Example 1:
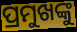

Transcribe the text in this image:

ପ୍ରମୁଖଙ୍କୁ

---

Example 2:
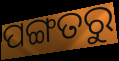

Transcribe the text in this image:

ପଙ୍ଗତରୁ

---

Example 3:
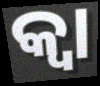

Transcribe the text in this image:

କ୍ଵା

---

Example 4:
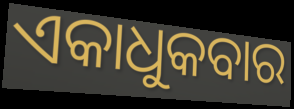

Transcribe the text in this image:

ଏକାଧୁକବାର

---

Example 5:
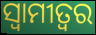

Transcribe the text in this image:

ସ୍ଵାମୀତ୍ୱର